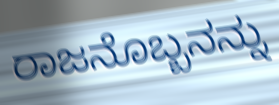
ರಾಜನೊಬ್ಬನನ್ನು